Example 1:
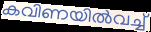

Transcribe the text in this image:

കവിണയിൽവച്ച്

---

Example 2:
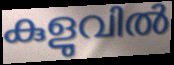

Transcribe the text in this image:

കുളുവിൽ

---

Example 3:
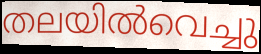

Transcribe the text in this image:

തലയിൽവെച്ചു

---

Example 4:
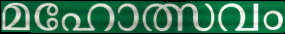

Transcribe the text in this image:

മഹോത്സവം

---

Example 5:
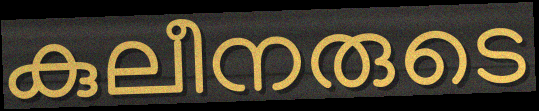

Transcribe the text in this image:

കുലീനരുടെ